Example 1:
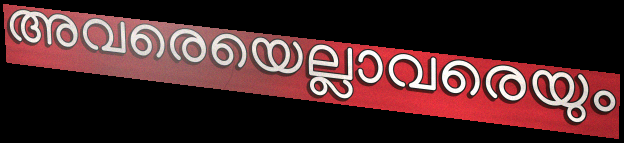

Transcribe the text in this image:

അവരെയെല്ലാവരെയും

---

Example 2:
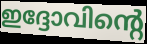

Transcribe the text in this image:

ഇദ്ദോവിന്റെ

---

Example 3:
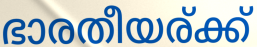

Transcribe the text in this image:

ഭാരതീയര്ക്ക്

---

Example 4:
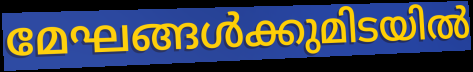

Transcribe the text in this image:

മേഘങ്ങൾക്കുമിടയിൽ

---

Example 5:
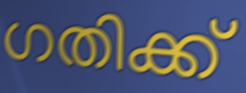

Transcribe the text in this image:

ഗതിക്ക്